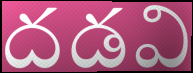
దడవి